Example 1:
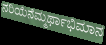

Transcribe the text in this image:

ನರಿಯೆನೆಮ್ಮರ್ಥಾಭಿಮಾನ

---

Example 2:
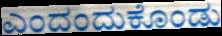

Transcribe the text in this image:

ಎಂದಂದುಕೊಂಡು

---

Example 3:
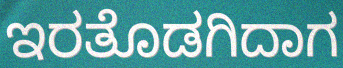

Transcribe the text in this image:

ಇರತೊಡಗಿದಾಗ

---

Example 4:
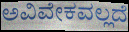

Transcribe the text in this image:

ಅವಿವೇಕವಲ್ಲದೆ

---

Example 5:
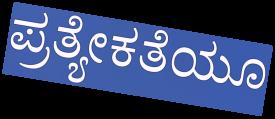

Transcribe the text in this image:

ಪ್ರತ್ಯೇಕತೆಯೂ